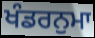
ਖੰਡਰਨੁਮਾ